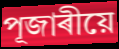
পূজাৰীয়ে